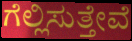
ಗೆಲ್ಲಿಸುತ್ತೇವೆ